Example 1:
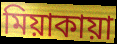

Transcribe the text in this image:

মিয়াকায়া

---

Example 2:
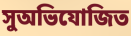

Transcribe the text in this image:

সুঅভিযোজিত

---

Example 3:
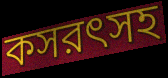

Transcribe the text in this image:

কসরৎসহ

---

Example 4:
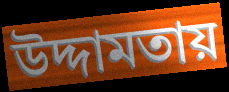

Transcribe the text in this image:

উদ্দামতায়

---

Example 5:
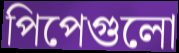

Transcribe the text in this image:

পিপেগুলো